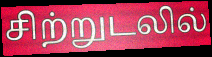
சிற்றுடலில்